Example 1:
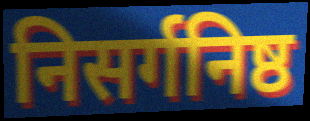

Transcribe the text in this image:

निसर्गनिष्ठ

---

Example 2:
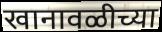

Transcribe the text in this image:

खानावळीच्या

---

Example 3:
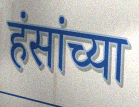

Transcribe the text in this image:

हंसांच्या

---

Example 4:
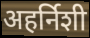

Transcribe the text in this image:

अहर्निशी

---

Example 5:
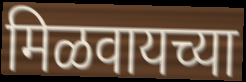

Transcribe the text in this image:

मिळवायच्या